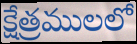
క్షేత్రములలో